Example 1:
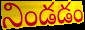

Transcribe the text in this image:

నిండడం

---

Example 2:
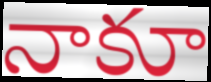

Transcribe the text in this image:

నాకూ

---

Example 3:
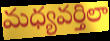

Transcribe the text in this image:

మధ్యవర్తిలా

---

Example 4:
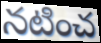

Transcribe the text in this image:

నటించ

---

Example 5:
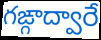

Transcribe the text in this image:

గఙ్గాద్వారే